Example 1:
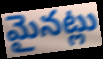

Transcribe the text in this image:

మైనట్లు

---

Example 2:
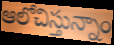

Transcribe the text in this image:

ఆలోచిస్తున్నాం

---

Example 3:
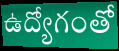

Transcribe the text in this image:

ఉద్యోగంతో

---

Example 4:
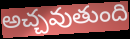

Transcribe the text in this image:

అచ్చవుతుంది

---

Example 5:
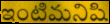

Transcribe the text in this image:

ఇంటిమనిషి